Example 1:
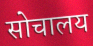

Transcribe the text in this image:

सोचालय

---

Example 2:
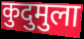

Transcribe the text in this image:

कुदुमुला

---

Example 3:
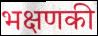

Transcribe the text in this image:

भक्षणकी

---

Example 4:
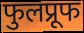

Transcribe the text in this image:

फुलप्रूफ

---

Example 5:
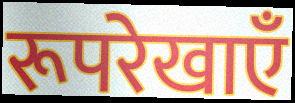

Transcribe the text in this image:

रूपरेखाएँ